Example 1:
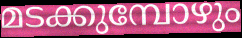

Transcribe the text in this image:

മടക്കുമ്പോഴും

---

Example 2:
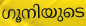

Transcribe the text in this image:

ഗൂനിയുടെ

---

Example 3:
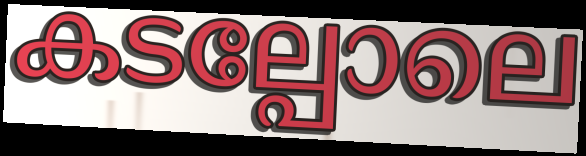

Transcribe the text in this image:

കടല്പോലെ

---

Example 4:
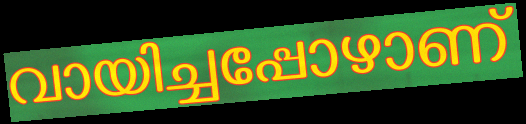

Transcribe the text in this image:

വായിച്ചപ്പോഴാണ്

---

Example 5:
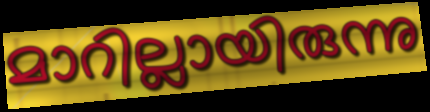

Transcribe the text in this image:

മാറില്ലായിരുന്നു